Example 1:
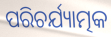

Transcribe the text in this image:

ପରିଚର୍ଯ୍ୟାତ୍ମକ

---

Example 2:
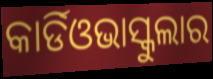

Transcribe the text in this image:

କାର୍ଡିଓଭାସ୍କୁଲାର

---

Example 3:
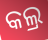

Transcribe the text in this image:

କଲ୍ର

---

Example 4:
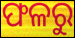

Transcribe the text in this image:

ଫଳରୁ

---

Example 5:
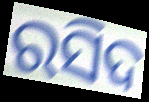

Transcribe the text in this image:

ରସିଦ